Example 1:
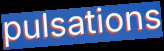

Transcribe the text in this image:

pulsations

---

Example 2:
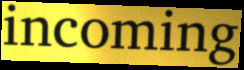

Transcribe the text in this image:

incoming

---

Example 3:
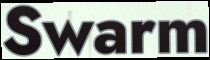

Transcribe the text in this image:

Swarm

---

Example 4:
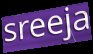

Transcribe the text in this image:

sreeja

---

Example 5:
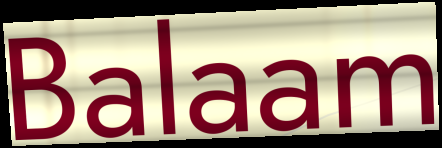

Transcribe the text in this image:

Balaam